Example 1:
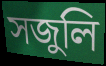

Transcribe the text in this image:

সজুলি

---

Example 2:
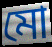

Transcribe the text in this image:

মো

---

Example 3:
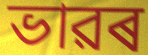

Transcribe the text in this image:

ভাৱৰ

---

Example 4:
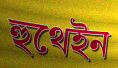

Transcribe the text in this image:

হুথেইন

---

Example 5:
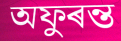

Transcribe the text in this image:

অফুৰন্ত